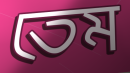
তেম